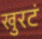
खुरटं